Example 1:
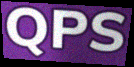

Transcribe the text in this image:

QPS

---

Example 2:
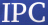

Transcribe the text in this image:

IPC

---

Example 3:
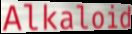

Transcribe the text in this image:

Alkaloid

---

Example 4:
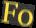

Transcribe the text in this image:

Fo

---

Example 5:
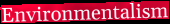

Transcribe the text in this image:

Environmentalism